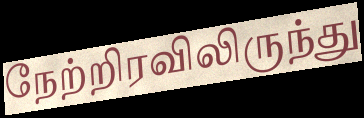
நேற்றிரவிலிருந்து